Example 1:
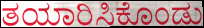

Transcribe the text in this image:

ತಯಾರಿಸಿಕೊಂಡು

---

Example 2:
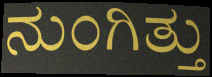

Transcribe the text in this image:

ನುಂಗಿತ್ತು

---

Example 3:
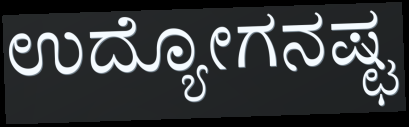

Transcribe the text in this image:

ಉದ್ಯೋಗನಷ್ಟ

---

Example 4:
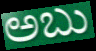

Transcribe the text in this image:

ಅಬು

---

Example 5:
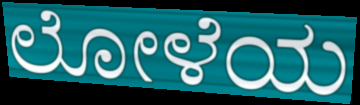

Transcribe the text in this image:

ಲೋಳೆಯ